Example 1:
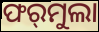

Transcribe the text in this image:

ଫର୍‌ମୁଲା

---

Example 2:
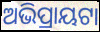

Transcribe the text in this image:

ଅଭିପ୍ରାୟଟା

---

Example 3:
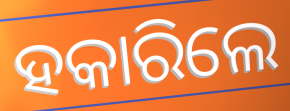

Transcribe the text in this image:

ହକାରିଲେ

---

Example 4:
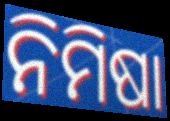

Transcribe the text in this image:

ନିମିଷା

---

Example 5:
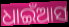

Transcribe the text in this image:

ଧାଇଁଆସ